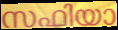
സഫിയാ